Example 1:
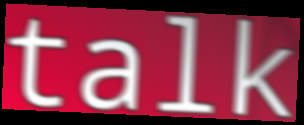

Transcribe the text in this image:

talk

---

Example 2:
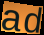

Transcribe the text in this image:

ad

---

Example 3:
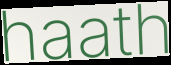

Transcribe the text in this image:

haath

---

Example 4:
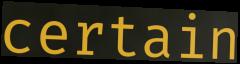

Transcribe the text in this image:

certain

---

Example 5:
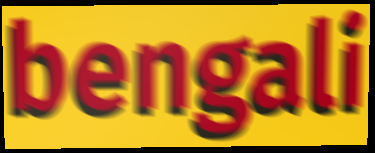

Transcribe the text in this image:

bengali